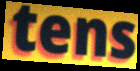
tens